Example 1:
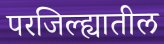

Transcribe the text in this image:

परजिल्ह्यातील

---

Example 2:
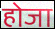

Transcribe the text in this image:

होजा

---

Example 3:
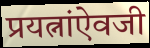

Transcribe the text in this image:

प्रयत्नांऐवजी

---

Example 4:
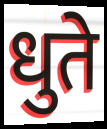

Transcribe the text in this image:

धुते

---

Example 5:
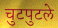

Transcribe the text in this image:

चुटपुटले